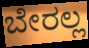
ಬೇರಲ್ಲ